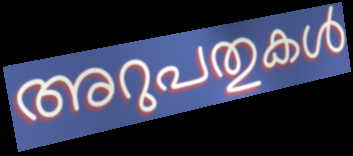
അറുപതുകൾ